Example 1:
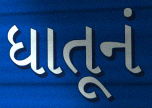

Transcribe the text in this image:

ધાતૂનં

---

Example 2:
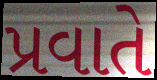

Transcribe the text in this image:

પ્રવાતે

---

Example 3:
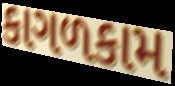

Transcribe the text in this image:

કાગળકામ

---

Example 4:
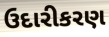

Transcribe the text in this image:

ઉદારીકરણ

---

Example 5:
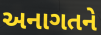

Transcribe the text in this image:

અનાગતને